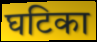
घटिका